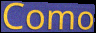
Como